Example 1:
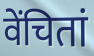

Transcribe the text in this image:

वेंचितां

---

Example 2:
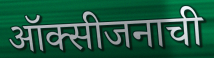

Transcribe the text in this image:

ऑक्सीजनाची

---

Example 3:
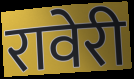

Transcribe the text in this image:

रावेरी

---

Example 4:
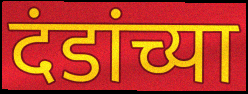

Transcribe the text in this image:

दंडांच्या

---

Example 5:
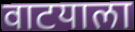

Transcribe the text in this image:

वाटयाला